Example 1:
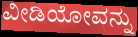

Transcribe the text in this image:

ವೀಡಿಯೋವನ್ನು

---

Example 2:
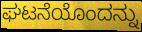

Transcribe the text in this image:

ಘಟನೆಯೊಂದನ್ನು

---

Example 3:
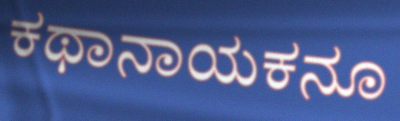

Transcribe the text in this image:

ಕಥಾನಾಯಕನೂ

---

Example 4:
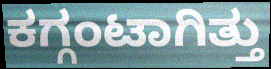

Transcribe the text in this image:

ಕಗ್ಗಂಟಾಗಿತ್ತು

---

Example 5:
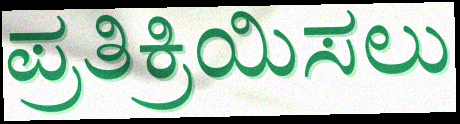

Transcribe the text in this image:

ಪ್ರತಿಕ್ರಿಯಿಸಲು